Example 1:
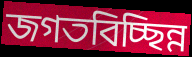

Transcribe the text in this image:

জগতবিচ্ছিন্ন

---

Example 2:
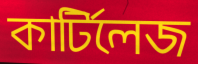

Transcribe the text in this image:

কার্টিলেজ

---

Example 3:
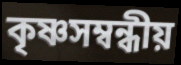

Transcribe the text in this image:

কৃষ্ণসম্বন্ধীয়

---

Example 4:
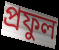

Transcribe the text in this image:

প্রফুল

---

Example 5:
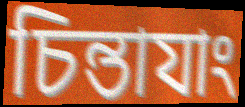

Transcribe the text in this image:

চিন্তাযাং